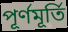
পূর্ণমূর্তি